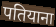
पतियाना